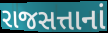
રાજસત્તાનાં